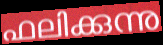
ഫലിക്കുന്നു